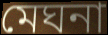
মেঘনা